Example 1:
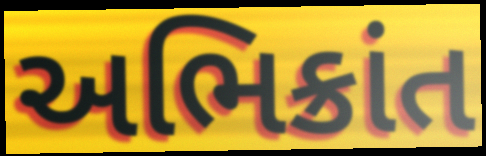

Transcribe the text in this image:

અભિક્રાંત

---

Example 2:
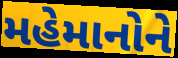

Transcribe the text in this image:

મહેમાનોને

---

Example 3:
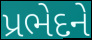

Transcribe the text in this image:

પ્રભેદને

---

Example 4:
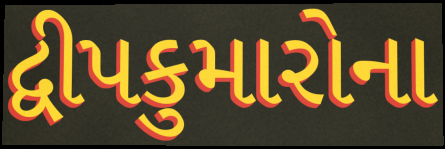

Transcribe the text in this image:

દ્વીપકુમારોના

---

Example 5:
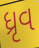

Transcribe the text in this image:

ધ્રૃવ